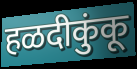
हळदीकुंकू